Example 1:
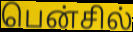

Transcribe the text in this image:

பென்சில்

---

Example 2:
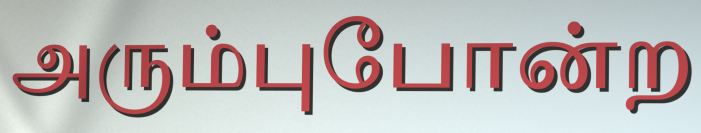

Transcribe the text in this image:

அரும்புபோன்ற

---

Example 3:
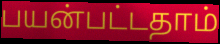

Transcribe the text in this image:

பயன்பட்டதாம்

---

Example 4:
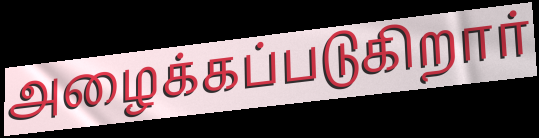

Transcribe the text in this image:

அழைக்கப்படுகிறார்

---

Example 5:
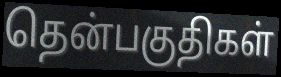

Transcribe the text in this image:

தென்பகுதிகள்